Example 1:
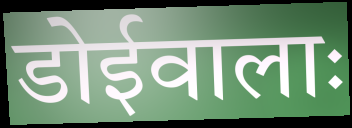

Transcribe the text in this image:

डोईवालाः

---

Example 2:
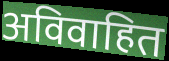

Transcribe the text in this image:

अविवाहित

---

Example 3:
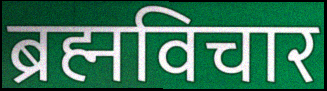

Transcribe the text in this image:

ब्रह्मविचार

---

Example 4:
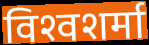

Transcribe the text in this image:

विश्वशर्मा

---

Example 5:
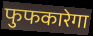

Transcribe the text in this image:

फुफकारेगा